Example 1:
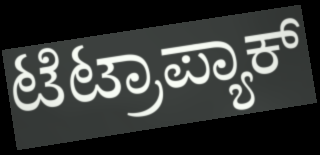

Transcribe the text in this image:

ಟೆಟ್ರಾಪ್ಯಾಕ್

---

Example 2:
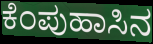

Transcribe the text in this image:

ಕೆಂಪುಹಾಸಿನ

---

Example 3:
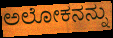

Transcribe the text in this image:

ಅಲೋಕನನ್ನು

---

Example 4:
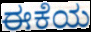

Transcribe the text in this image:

ಈಕೆಯ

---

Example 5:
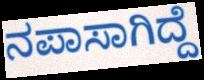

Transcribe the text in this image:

ನಪಾಸಾಗಿದ್ದೆ